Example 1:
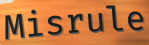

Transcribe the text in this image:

Misrule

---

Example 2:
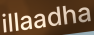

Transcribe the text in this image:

illaadha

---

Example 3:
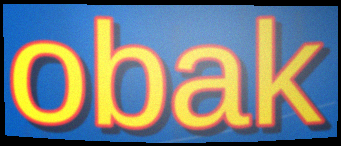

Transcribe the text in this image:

obak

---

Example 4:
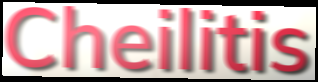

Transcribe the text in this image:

Cheilitis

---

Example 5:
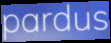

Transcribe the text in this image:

pardus